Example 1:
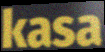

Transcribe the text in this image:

kasa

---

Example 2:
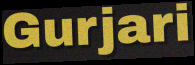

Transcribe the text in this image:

Gurjari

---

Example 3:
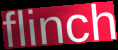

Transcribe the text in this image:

flinch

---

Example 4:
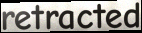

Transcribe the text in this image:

retracted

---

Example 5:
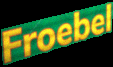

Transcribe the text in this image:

Froebel